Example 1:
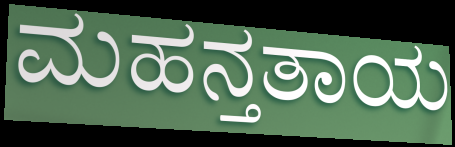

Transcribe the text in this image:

ಮಹನ್ತತಾಯ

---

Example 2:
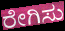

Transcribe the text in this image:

ರೇಗಿಸು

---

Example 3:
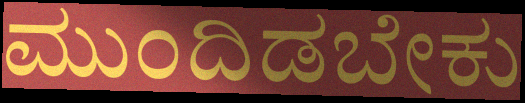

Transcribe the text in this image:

ಮುಂದಿಡಬೇಕು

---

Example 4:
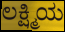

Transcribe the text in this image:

ಲಕ್ಷ್ಮಿಯ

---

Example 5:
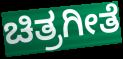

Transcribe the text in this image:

ಚಿತ್ರಗೀತೆ